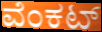
ವೆಂಕಟ್